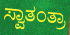
ಸ್ವಾತಂತ್ರಾ